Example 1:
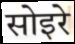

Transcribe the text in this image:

सोइरे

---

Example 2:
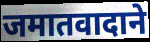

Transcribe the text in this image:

जमातवादाने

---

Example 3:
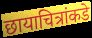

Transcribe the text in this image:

छायाचित्रांकडे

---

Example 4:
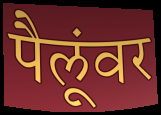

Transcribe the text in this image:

पैलूंवर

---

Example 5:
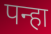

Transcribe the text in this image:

पन्हा